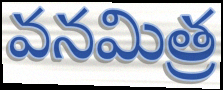
వనమిత్ర